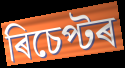
ৰিচেপ্টৰ